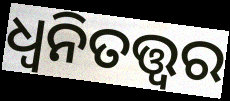
ଧ୍ଵନିତତ୍ତ୍ଵର